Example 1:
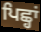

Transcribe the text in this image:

ਪਿਛ੍ਹਾਂ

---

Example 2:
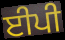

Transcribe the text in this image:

ਈਪੀ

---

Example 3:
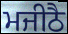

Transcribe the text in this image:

ਮਜੀਠੈ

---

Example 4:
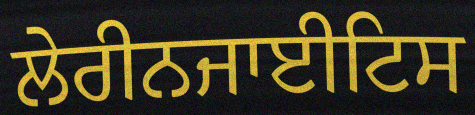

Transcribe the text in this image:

ਲੇਰੀਨਜਾਈਟਿਸ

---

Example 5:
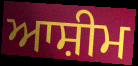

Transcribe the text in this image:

ਆਸ਼ੀਮ